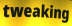
tweaking